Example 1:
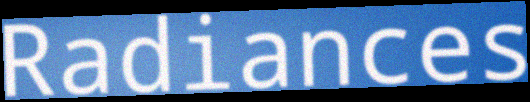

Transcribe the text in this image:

Radiances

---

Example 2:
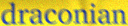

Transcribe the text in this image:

draconian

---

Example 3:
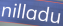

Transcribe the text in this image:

nilladu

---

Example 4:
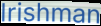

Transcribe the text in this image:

Irishman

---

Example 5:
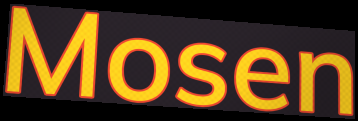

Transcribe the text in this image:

Mosen